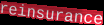
reinsurance